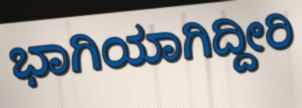
ಭಾಗಿಯಾಗಿದ್ದೀರಿ